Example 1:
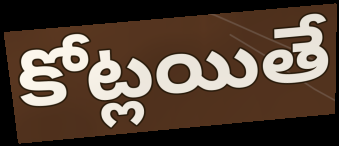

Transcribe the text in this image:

కోట్లయితే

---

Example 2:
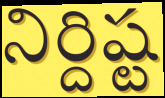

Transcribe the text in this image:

నిర్దిష్ట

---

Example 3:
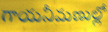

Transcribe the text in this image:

గాయనీమణుల్లో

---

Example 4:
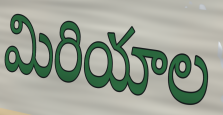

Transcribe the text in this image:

మిరియాల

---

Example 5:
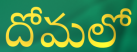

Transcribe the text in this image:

దోమలో